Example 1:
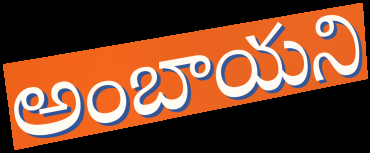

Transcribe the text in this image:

అంబాయని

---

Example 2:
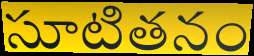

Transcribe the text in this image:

సూటితనం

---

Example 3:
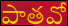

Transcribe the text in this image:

పాతవో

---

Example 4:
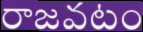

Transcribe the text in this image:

రాజవటం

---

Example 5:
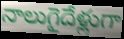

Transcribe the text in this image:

నాలుగైదేళ్లుగా